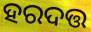
ହରଦତ୍ତ